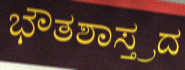
ಭೌತಶಾಸ್ತ್ರದ